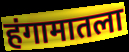
हंगामातला